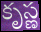
కృస్ణ